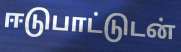
ஈடுபாட்டுடன்